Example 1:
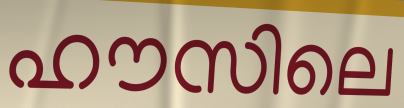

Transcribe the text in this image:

ഹൗസിലെ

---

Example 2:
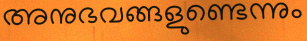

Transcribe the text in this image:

അനുഭവങ്ങളുണ്ടെന്നും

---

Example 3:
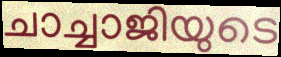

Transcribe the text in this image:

ചാച്ചാജിയുടെ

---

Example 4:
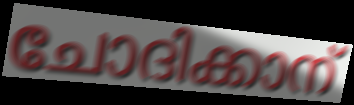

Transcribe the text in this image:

ചോദിക്കാന്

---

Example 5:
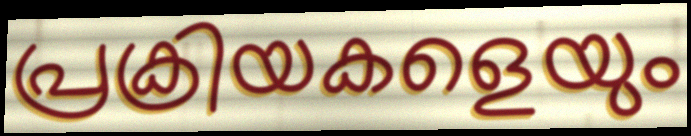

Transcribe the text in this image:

പ്രക്രിയകളെയും